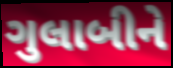
ગુલાબીને